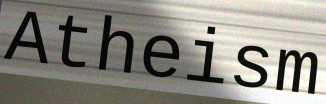
Atheism